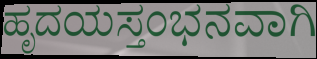
ಹೃದಯಸ್ತಂಭನವಾಗಿ